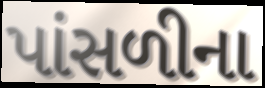
પાંસળીના